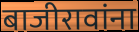
बाजीरावांना